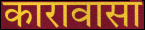
कारावासा